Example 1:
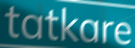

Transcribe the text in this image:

tatkare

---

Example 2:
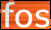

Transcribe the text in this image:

fos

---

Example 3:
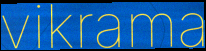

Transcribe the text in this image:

vikrama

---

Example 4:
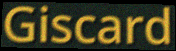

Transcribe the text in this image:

Giscard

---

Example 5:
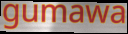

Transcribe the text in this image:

gumawa